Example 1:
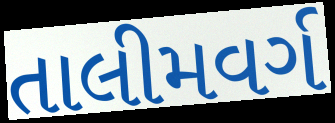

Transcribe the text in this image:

તાલીમવર્ગ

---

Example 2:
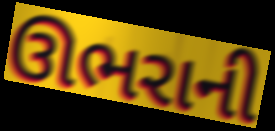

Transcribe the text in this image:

ઊભરાની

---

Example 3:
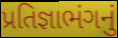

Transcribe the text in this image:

પ્રતિજ્ઞાભંગનું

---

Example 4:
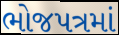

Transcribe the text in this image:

ભોજપત્રમાં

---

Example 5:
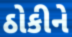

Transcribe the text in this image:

ઠોકીને